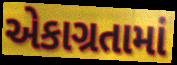
એકાગ્રતામાં